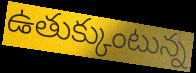
ఉతుక్కుంటున్న